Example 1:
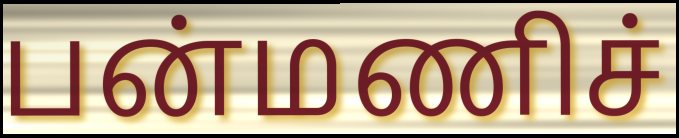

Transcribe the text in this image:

பன்மணிச்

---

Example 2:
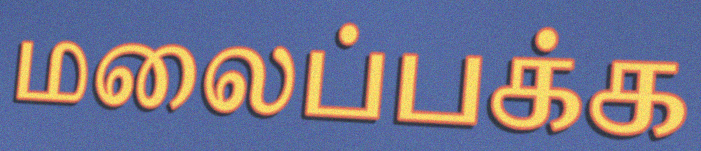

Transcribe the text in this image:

மலைப்பக்க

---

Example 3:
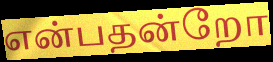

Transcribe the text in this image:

என்பதன்றோ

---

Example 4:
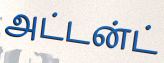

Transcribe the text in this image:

அட்டன்ட்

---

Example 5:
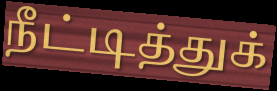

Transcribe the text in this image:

நீட்டித்துக்